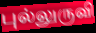
புல்லுருவி